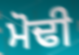
ਮੋਢੀ